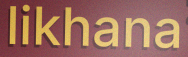
likhana